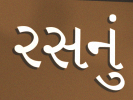
રસનું